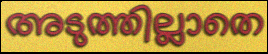
അടുത്തില്ലാതെ